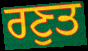
ਰਣੁਤ